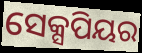
ସେକ୍ସପିୟର